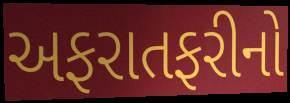
અફરાતફરીનો